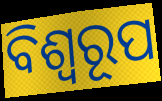
ବିଶ୍ଵରୂପ